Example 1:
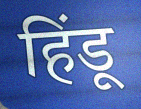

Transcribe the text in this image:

हिंडू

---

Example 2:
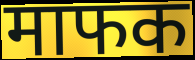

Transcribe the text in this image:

माफक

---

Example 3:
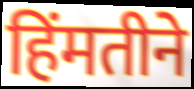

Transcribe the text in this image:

हिंमतीने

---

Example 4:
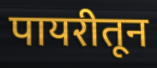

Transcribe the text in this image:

पायरीतून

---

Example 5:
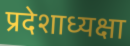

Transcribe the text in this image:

प्रदेशाध्यक्षा